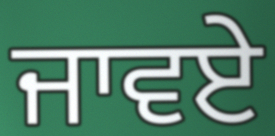
ਜਾਵਏ